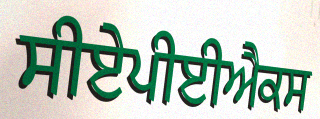
ਸੀਏਪੀਈਐਕਸ